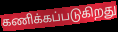
கணிக்கப்படுகிறது